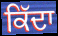
ਕਿੱਦਾ